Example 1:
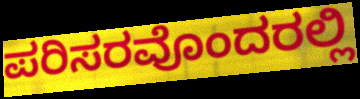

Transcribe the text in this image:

ಪರಿಸರವೊಂದರಲ್ಲಿ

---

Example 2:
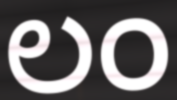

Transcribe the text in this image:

ಲಂ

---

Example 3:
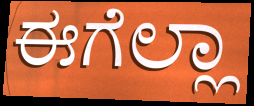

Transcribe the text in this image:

ಈಗೆಲ್ಲಾ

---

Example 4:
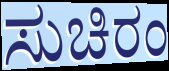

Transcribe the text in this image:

ಸುಚಿರಂ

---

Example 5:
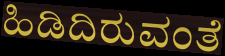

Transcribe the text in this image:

ಹಿಡಿದಿರುವಂತೆ